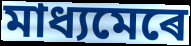
মাধ্যমেৰে